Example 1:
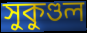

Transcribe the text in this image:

সুকুণ্ডল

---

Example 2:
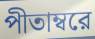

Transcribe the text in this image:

পীতাম্বরে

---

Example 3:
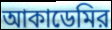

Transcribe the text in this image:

আকাডেমির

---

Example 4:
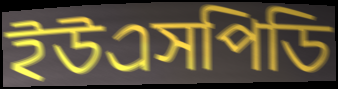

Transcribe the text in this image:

ইউএসপিডি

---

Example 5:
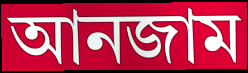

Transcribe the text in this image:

আনজাম